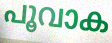
പൂവാക